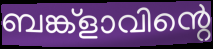
ബങ്ക്ളാവിന്റെ